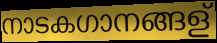
നാടകഗാനങ്ങള്